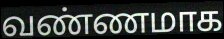
வண்ணமாக